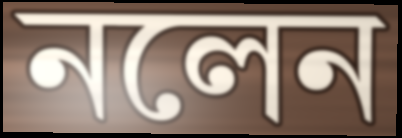
নলেন